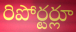
రిపోర్టర్లూ